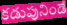
కడుపునిండే